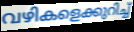
വഴികളെക്കുറിച്ച്